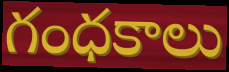
గంధకాలు